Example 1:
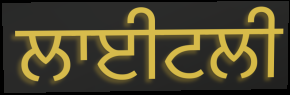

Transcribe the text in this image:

ਲਾਈਟਲੀ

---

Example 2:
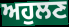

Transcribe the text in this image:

ਅਹੁਲਣ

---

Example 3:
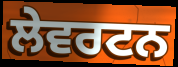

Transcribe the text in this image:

ਲੇਵਰਟਨ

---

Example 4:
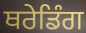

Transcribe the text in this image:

ਥਰੇਡਿੰਗ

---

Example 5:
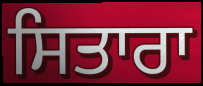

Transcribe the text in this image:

ਸਿਤਾਰਾ